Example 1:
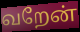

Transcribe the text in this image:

வறேன்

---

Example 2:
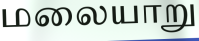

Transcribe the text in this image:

மலையாறு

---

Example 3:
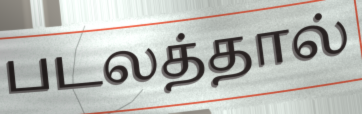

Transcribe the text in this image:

படலத்தால்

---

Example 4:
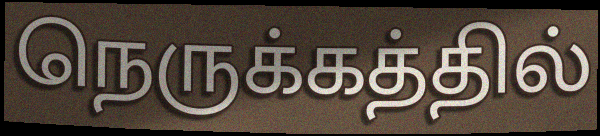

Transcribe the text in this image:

நெருக்கத்தில்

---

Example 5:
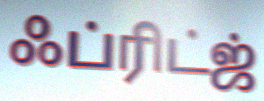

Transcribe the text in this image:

ஃப்ரிட்ஜ்